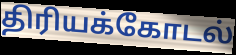
திரியக்கோடல்